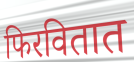
फिरवितात